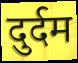
दुर्दम